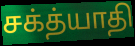
சக்த்யாதி